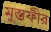
মুস্তফীর